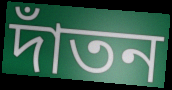
দাঁতন